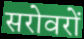
सरोवरों